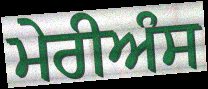
ਮੇਰੀਅੰਸ